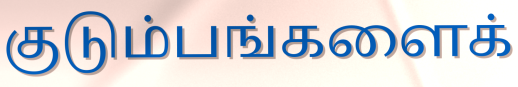
குடும்பங்களைக்